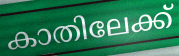
കാതിലേക്ക്